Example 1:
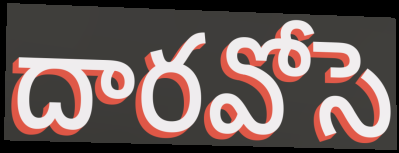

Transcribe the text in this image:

దారవోసె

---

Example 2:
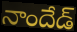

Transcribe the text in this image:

నాందేడ్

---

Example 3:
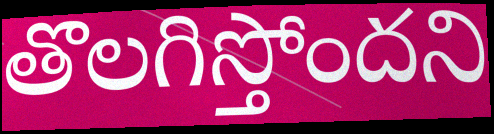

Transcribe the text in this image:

తొలగిస్తోందని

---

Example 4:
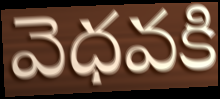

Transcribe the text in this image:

వెధవకి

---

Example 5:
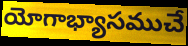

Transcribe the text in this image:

యోగాభ్యాసముచే